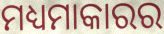
ମଧ୍ୟମାକାରର